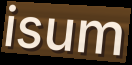
isum